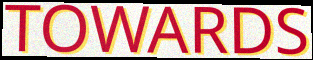
TOWARDS